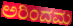
ಅರಿಂದಮ